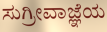
ಸುಗ್ರೀವಾಜ್ಞೆಯ